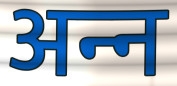
अन्न